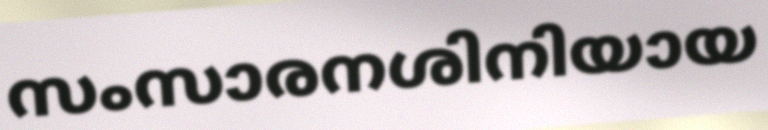
സംസാരനശിനിയായ